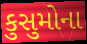
કુસુમોના